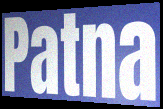
Patna